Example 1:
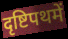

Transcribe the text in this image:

दृष्टिपथमें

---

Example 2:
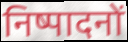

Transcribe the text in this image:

निष्पादनों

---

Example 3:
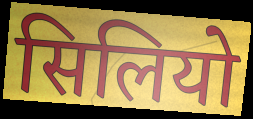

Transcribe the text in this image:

सिलियो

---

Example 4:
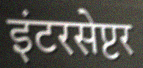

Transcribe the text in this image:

इंटरसेप्टर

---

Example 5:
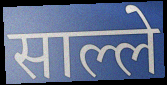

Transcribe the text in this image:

साल्ले